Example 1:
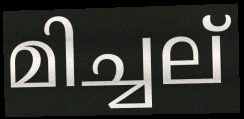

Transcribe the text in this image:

മിച്ചല്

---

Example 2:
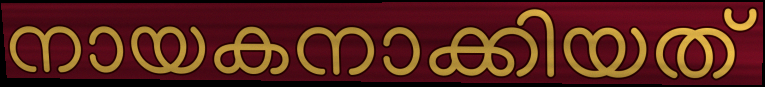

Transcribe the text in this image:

നായകനാക്കിയത്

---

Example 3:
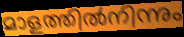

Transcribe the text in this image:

മാളത്തിൽനിന്നും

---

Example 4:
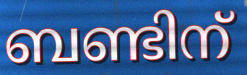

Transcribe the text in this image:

ബണ്ടിന്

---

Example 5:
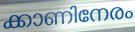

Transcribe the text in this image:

ക്കാണിനേരം